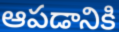
ఆపడానికి